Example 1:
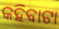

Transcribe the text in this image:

କହିବାଟା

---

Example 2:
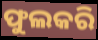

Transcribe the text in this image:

ଫୁଲକରି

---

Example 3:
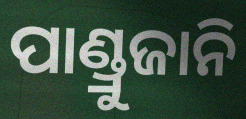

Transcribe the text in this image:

ପାଣ୍ଡ୍ରୁଜାନି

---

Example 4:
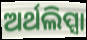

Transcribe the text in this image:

ଅର୍ଥଲିପ୍ସା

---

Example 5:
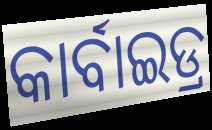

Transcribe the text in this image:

କାର୍ବାଇଡ୍ର